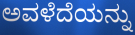
ಅವಳೆದೆಯನ್ನು